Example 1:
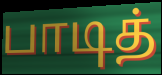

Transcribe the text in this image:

பாடித்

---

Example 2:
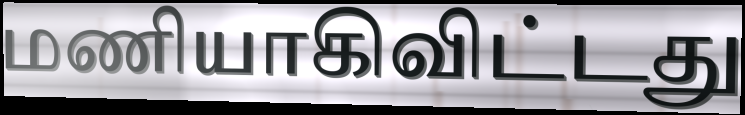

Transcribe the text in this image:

மணியாகிவிட்டது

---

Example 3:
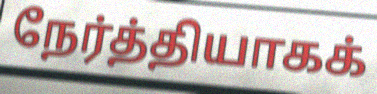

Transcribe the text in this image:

நேர்த்தியாகக்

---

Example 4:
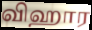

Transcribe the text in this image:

விஹார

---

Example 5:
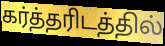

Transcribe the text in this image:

கர்த்தரிடத்தில்